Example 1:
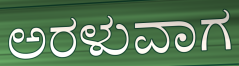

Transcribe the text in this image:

ಅರಳುವಾಗ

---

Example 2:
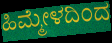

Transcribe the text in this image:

ಹಿಮ್ಮೇಳದಿಂದ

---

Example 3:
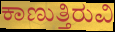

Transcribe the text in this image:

ಕಾಣುತ್ತಿರುವಿ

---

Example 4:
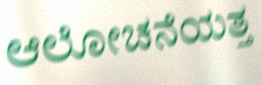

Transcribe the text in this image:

ಆಲೋಚನೆಯತ್ತ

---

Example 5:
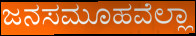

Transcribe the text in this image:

ಜನಸಮೂಹವೆಲ್ಲಾ